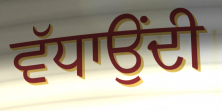
ਵੱਧਾਉਂਦੀ